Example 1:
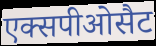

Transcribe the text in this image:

एक्सपीओसैट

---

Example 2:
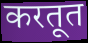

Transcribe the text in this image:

करतूत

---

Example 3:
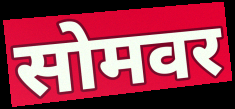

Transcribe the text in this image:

सोमवर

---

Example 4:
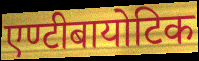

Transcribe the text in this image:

एण्टीबायोटिक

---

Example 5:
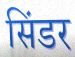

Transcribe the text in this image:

सिंडर